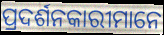
ପ୍ରଦର୍ଶନକାରୀମାନେ